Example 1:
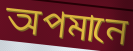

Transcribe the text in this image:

অপমানে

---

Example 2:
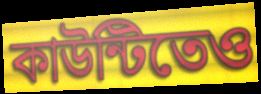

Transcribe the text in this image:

কাউন্টিতেও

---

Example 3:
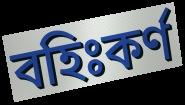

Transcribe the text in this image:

বহিঃকর্ণ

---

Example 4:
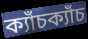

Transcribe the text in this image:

ক্যাঁচক্যাঁচ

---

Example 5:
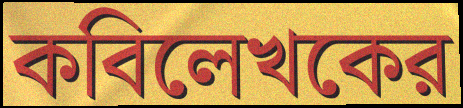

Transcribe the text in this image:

কবিলেখকের